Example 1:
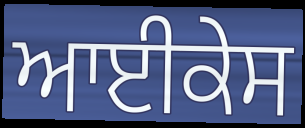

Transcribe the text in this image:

ਆਈਕੇਸ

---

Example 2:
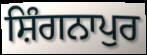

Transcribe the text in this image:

ਸ਼ਿੰਗਨਾਪੁਰ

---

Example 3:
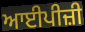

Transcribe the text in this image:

ਆਈਪੀਜ਼ੀ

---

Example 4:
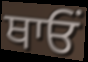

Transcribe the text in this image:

ਥਾਓਂ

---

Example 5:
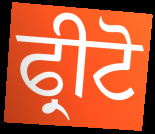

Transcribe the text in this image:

ਫ੍ਰੀਟੋ